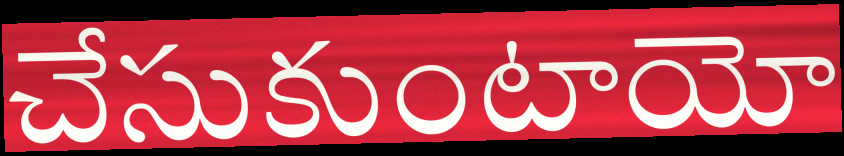
చేసుకుంటాయో